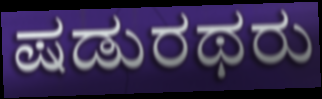
ಷಡುರಥರು